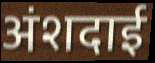
अंशदाई